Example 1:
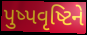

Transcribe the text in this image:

પુષ્પવૃષ્ટિને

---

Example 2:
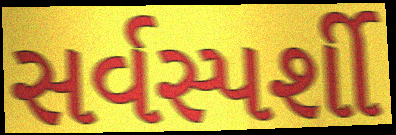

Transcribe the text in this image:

સર્વસ્પર્શી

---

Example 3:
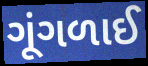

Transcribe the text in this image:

ગૂંગળાઈ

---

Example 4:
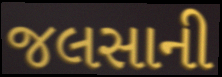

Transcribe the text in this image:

જલસાની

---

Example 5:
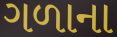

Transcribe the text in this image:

ગળાના